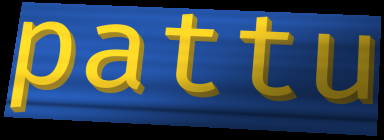
pattu